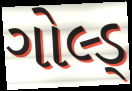
ગોલ્ડ્